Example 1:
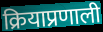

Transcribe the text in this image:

क्रियाप्रणाली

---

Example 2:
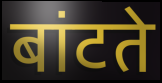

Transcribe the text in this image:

बांटते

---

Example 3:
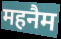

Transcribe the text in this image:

महनैम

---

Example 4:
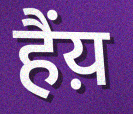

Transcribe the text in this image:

हैंय़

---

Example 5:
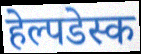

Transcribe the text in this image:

हेल्पडेस्क